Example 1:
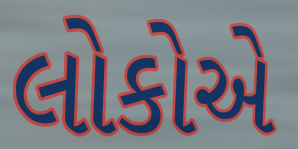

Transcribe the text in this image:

લોકોએ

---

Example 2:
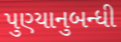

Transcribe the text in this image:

પુણ્યાનુબન્ધી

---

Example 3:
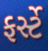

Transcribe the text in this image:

ફર્સ્ટે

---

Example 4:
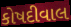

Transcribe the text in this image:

કોષદીવાલ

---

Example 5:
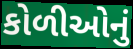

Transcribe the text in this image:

કોળીઓનું